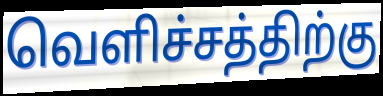
வெளிச்சத்திற்கு